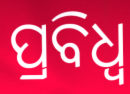
ପ୍ରବିଧ୍ଵ